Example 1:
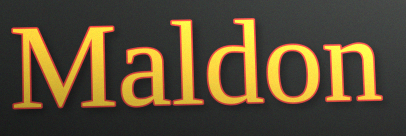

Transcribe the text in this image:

Maldon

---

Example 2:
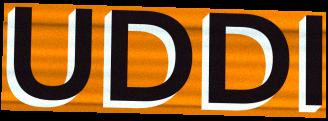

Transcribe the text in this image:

UDDI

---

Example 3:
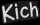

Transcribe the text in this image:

Kich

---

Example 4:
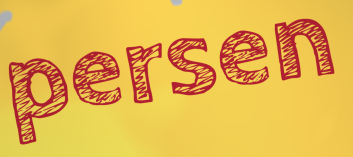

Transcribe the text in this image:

persen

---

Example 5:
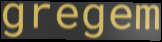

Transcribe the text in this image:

gregem